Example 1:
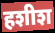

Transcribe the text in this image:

हशीश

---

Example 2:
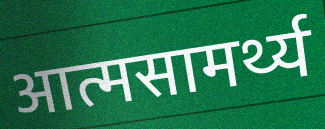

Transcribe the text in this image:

आत्मसामर्थ्य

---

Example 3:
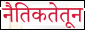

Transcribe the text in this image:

नैतिकतेतून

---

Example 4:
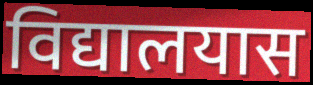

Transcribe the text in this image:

विद्यालयास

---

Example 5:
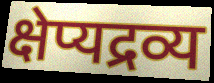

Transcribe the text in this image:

क्षेप्यद्रव्य